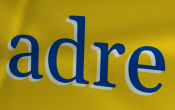
adre